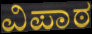
ವಿಪಾಠ